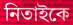
নিতাইকে